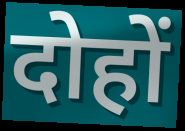
दोहों